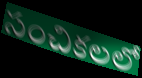
సంచికలలో